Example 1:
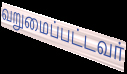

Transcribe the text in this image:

வறுமைப்பட்டவர்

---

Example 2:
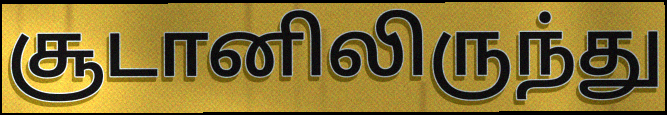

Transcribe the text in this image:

சூடானிலிருந்து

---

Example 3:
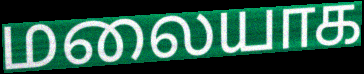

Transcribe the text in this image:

மலையாக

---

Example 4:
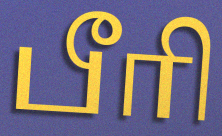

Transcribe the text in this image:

பீரி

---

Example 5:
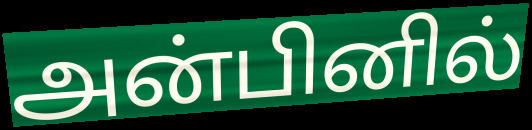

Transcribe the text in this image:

அன்பினில்